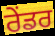
ਰੇੰਡਰ